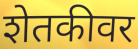
शेतकीवर